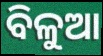
ବିଳୁଆ